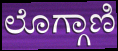
ಲೊಗ್ಗಾಣಿ